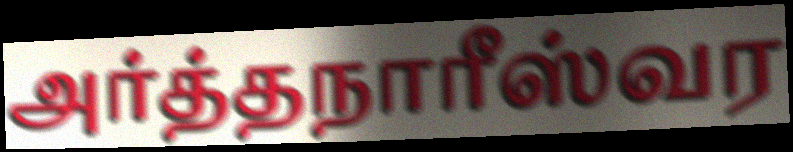
அர்த்தநாரீஸ்வர